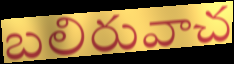
బలిరువాచ